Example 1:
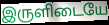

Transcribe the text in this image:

இருளிடையே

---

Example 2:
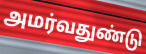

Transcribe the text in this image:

அமர்வதுண்டு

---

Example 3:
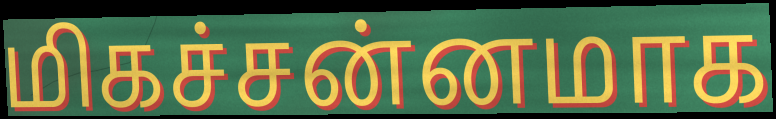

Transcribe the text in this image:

மிகச்சன்னமாக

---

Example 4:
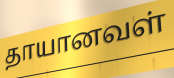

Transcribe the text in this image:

தாயானவள்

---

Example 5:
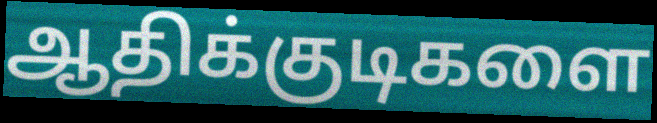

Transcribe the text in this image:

ஆதிக்குடிகளை